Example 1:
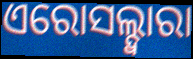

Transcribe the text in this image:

ଏରୋସଲ୍ଦ୍ୱାରା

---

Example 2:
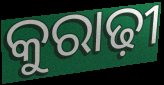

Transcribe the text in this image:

କୁରାଢ଼ୀ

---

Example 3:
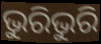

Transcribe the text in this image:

ଭୁରିଭୁରି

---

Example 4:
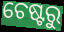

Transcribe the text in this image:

ଚେଷ୍ଟରୁ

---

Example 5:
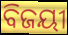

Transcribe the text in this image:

ବିଜୟୀ